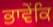
ਭਾਵੇਂਕਿ